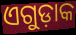
ଏଗୁଡ଼ାକ